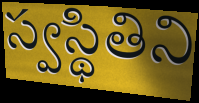
స్వస్థితిని